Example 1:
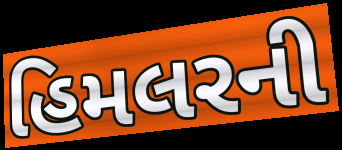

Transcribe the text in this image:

હિમલરની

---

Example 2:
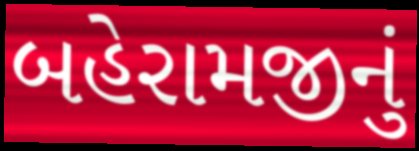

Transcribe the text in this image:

બહેરામજીનું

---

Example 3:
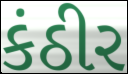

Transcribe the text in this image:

કંઠીર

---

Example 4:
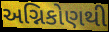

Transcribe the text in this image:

અગ્નિકોણથી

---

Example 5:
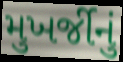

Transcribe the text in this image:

મુખર્જીનું